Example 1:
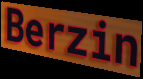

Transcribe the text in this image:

Berzin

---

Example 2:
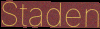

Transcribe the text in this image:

Staden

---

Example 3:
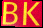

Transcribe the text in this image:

BK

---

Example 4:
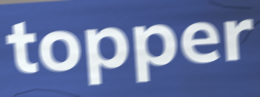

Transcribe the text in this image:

topper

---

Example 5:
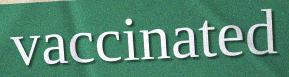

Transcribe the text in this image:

vaccinated